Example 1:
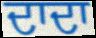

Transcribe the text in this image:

ਦਾਦਾ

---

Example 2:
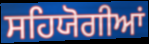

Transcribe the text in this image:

ਸਹਿਯੋਗੀਆਂ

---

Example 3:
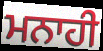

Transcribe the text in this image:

ਮਨਾਹੀ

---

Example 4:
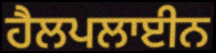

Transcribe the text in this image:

ਹੈਲਪਲਾਈਨ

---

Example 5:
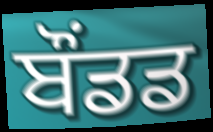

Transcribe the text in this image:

ਬੌਂਡਡ